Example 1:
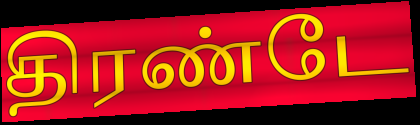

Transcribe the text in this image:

திரண்டே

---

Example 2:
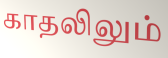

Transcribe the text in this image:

காதலிலும்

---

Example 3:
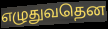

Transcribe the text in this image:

எழுதுவதென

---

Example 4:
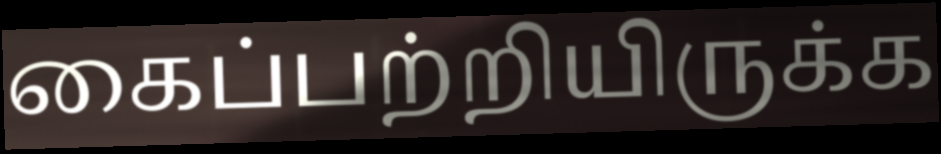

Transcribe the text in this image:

கைப்பற்றியிருக்க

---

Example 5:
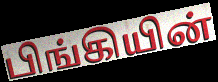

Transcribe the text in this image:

பிங்கியின்